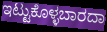
ಇಟ್ಟುಕೊಳ್ಳಬಾರದಾ